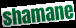
shamane